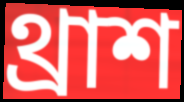
থ্রাশ